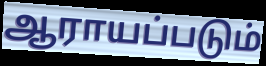
ஆராயப்படும்